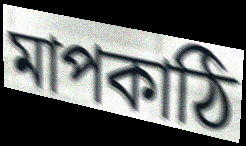
মাপকাঠি